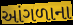
આંગળાના